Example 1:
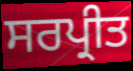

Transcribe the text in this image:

ਸਰਪ੍ਰੀਤ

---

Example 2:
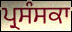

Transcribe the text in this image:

ਪ੍ਰਸੰਸਕਾ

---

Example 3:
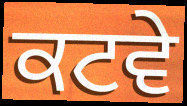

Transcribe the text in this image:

ਕਟਵੇ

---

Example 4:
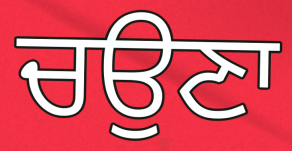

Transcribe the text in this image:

ਚਉਣਾ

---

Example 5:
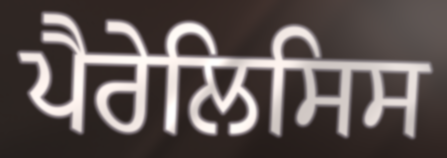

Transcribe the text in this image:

ਪੈਰੇਲਿਸਿਸ